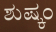
ಶುಷ್ಕಂ